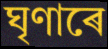
ঘৃণাৰে